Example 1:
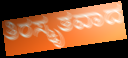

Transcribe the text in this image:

ತಿರಸ್ಕೃತವಾದ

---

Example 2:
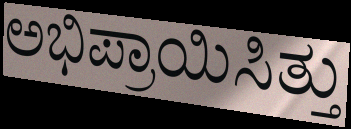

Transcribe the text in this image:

ಅಭಿಪ್ರಾಯಿಸಿತ್ತು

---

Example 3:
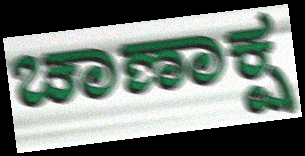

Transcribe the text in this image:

ಚಾಣಾಕ್ಷ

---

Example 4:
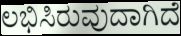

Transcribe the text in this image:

ಲಭಿಸಿರುವುದಾಗಿದೆ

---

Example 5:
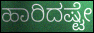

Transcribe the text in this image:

ಹಾರಿದಷ್ಟೇ